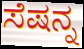
ಸೆಷನ್ನ